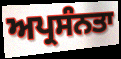
ਅਪ੍ਰਸੰਨਤਾ